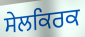
ਸੇਲਕਿਰਕ